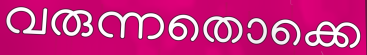
വരുന്നതൊക്കെ